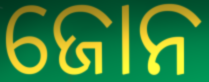
ଜୋନ